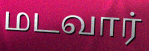
மடவார்